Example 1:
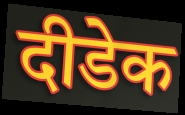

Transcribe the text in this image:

दीडेक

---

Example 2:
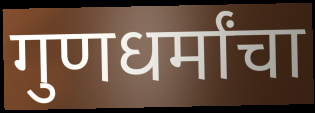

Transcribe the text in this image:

गुणधर्मांचा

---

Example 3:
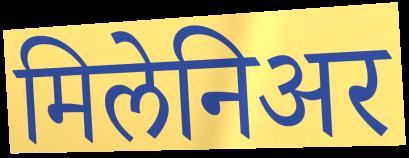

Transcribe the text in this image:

मिलेनिअर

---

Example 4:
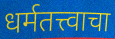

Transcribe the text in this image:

धर्मतत्त्वाचा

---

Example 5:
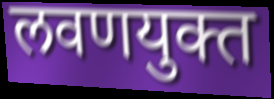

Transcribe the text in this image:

लवणयुक्त